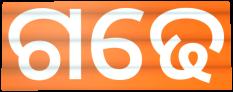
ଗଢେ